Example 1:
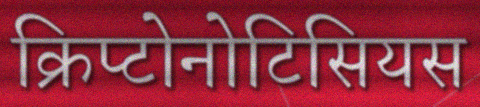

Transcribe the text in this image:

क्रिप्टोनोटिसियस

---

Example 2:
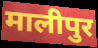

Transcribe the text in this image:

मालीपुर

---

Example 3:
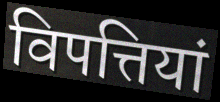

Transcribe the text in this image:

विपत्तियां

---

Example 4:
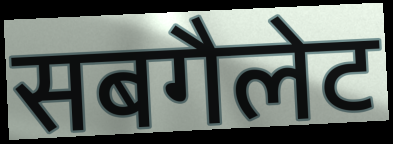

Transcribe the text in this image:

सबगैलेट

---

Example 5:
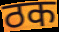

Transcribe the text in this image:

ठक